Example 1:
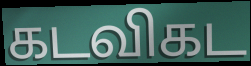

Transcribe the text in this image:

கடவிகட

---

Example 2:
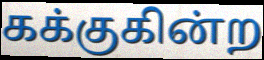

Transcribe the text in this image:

கக்குகின்ற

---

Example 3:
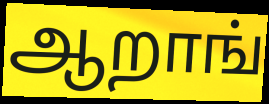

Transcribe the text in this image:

ஆறாங்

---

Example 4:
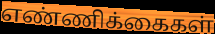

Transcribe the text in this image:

எண்ணிக்கைகள்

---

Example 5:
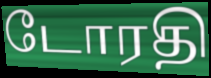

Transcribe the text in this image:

டோரதி